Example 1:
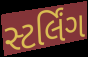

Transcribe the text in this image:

સ્ટર્લિંગ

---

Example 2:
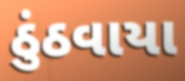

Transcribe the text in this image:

ઠુંઠવાયા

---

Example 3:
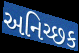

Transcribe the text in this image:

અનિચ્છક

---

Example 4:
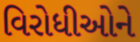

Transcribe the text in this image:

વિરોધીઓને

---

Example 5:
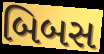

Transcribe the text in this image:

બિબસ